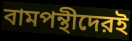
বামপন্থীদেরই